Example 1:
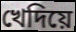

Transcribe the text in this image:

খেদিয়ে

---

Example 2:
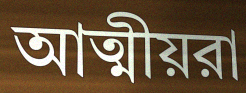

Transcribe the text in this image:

আত্মীয়রা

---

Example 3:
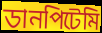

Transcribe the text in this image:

ডানপিটেমি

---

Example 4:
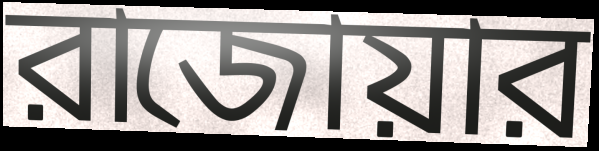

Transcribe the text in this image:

রাজোয়ার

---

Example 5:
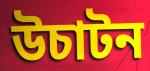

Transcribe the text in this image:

উচাটন